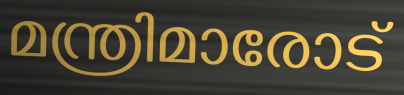
മന്ത്രിമാരോട്